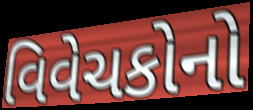
વિવેચકોનો